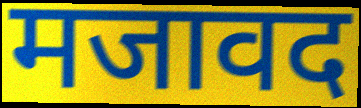
मजावद